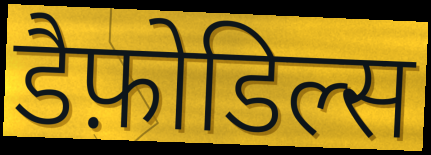
डैफ़ोडिल्स